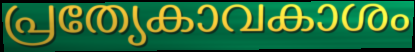
പ്രത്യേകാവകാശം